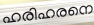
ഹരിഹരനെ